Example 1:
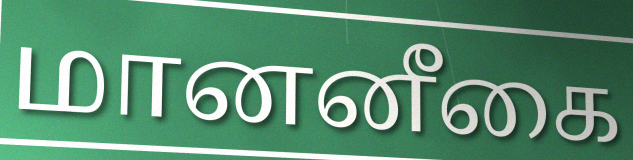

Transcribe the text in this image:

மானனீகை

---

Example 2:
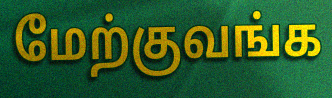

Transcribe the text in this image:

மேற்குவங்க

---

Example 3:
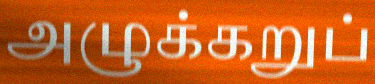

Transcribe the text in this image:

அழுக்கறுப்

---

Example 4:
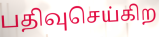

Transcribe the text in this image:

பதிவுசெய்கிற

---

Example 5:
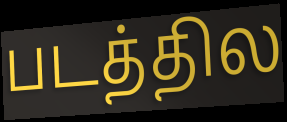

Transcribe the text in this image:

படத்தில